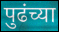
पुढंच्या